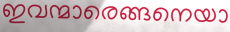
ഇവന്മാരെങ്ങനെയാ